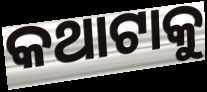
କଥାଟାକୁ